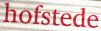
hofstede